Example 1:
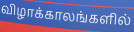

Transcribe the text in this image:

விழாக்காலங்களில்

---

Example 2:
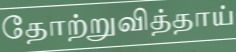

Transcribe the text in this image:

தோற்றுவித்தாய்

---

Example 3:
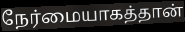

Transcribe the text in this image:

நேர்மையாகத்தான்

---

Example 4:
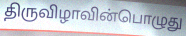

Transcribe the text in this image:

திருவிழாவின்பொழுது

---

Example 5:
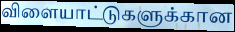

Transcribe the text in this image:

விளையாட்டுகளுக்கான